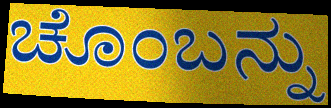
ಚೊಂಬನ್ನು